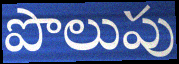
పొలుపు